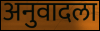
अनुवादला